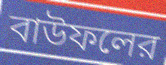
বাউফলের